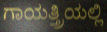
ಗಾಯತ್ತ್ರಿಯಲ್ಲಿ